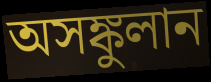
অসঙ্কুলান